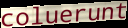
coluerunt